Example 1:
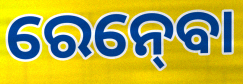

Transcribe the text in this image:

ରେନ୍‍ବୋ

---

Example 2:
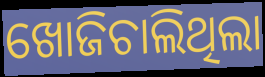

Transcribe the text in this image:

ଖୋଜିଚାଲିଥିଲା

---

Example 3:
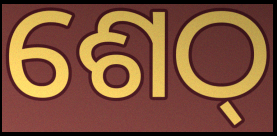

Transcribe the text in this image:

ଶେଠ୍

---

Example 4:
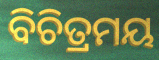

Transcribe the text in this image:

ବିଚିତ୍ରମୟ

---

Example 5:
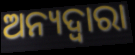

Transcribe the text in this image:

ଅନ୍ୟଦ୍ଵାରା